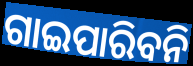
ଗାଇପାରିବନି